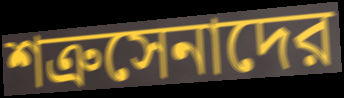
শত্রুসেনাদের